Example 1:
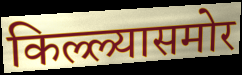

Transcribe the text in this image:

किल्ल्यासमोर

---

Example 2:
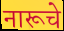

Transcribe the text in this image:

नारूचे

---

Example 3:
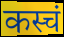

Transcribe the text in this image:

कस्चं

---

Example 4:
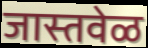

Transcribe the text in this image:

जास्तवेळ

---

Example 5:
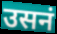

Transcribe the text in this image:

उसनं